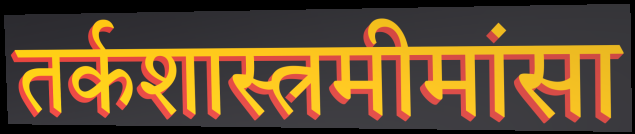
तर्कशास्त्रमीमांसा